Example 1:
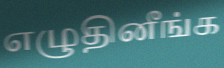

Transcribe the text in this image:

எழுதினீங்க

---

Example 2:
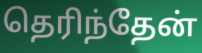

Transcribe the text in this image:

தெரிந்தேன்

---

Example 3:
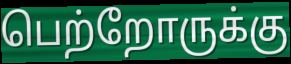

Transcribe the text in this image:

பெற்றோருக்கு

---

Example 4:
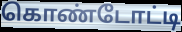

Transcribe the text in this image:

கொண்டோட்டி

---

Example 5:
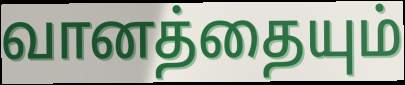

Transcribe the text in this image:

வானத்தையும்